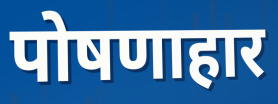
पोषणाहार